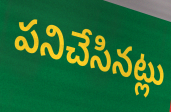
పనిచేసినట్లు